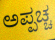
ಅಪ್ಪಚ್ಚ